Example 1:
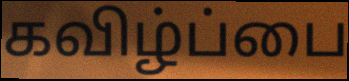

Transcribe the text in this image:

கவிழ்ப்பை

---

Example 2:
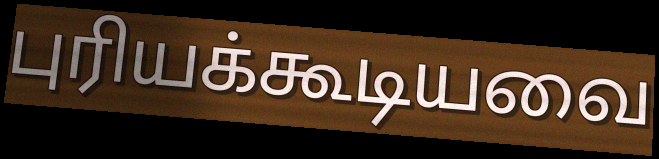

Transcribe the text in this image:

புரியக்கூடியவை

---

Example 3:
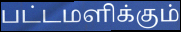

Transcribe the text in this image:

பட்டமளிக்கும்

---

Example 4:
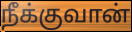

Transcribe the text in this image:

நீக்குவான்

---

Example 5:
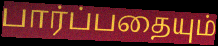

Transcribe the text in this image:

பார்ப்பதையும்